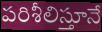
పరిశీలిస్తూనే